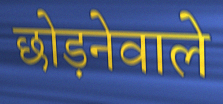
छोड़नेवाले